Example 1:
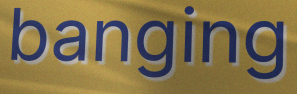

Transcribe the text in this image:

banging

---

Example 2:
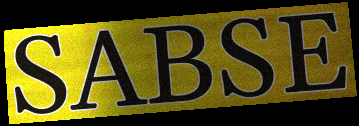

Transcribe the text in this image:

SABSE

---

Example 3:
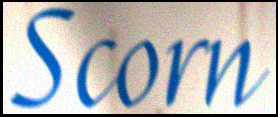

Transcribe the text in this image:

Scorn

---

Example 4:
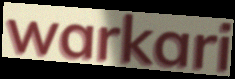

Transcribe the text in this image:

warkari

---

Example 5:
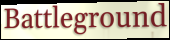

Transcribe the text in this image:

Battleground